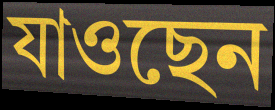
যাওছেন